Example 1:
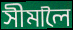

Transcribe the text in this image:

সীমালৈ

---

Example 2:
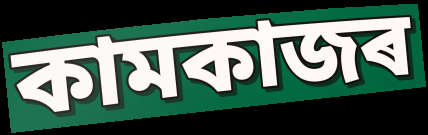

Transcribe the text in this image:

কামকাজৰ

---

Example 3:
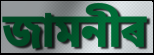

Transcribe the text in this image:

জামনীৰ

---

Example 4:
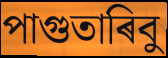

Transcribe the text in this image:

পাগুতাৰিবু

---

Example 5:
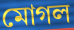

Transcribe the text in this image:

মোগল